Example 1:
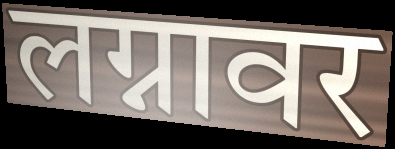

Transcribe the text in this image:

लग्नावर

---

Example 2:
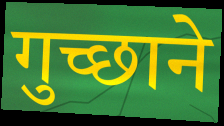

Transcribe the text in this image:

गुच्छाने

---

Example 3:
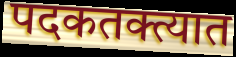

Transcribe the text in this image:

पदकतक्त्यात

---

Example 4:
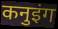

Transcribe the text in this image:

कनुइंग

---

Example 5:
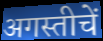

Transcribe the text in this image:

अगस्तीचें